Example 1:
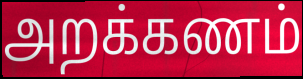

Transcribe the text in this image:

அறக்கணம்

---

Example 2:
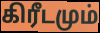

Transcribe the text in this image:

கிரீடமும்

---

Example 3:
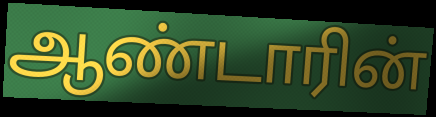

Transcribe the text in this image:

ஆண்டாரின்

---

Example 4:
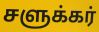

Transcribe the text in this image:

சளுக்கர்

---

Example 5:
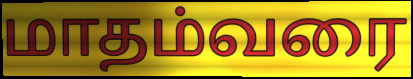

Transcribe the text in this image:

மாதம்வரை